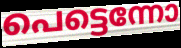
പെട്ടെന്നോ